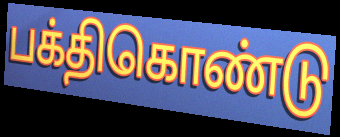
பக்திகொண்டு